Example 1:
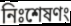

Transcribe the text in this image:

নিঃশেষণং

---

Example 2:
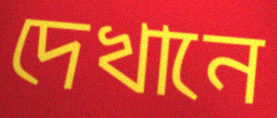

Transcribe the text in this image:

দেখানে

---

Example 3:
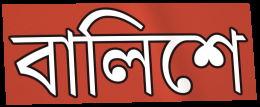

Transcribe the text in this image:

বালিশে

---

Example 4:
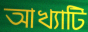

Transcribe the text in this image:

আখ্যাটি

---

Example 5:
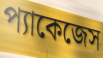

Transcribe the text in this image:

প্যাকেজেস